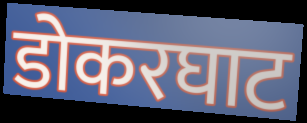
डोकरघाट